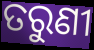
ତରୁଣୀ